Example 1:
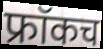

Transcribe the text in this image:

फ्रॉकच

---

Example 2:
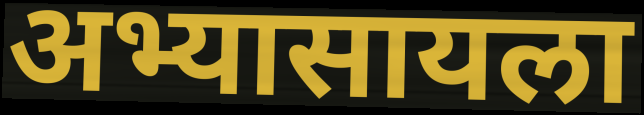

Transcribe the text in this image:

अभ्यासायला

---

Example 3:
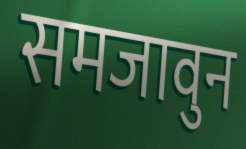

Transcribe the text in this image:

समजावुन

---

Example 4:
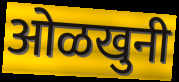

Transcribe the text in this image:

ओळखुनी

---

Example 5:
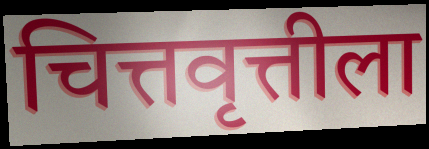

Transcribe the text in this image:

चित्तवृत्तीला